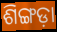
ଶିଙ୍ଗଡ଼ା